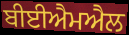
ਬੀਈਐਮਐਲ